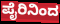
ಪೈರಿನಿಂದ